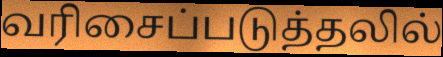
வரிசைப்படுத்தலில்